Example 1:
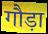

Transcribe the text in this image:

गौड़ा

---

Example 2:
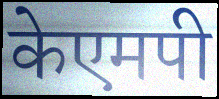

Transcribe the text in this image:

केएमपी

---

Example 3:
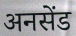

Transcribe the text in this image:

अनसेंड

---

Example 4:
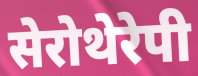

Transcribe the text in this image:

सेरोथेरेपी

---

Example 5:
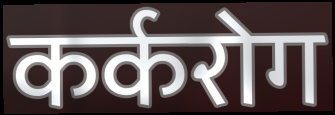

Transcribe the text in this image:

कर्करोग